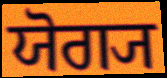
ਯੋਗ੍ਯ